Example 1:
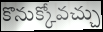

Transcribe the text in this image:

కొనుక్కోవచ్చు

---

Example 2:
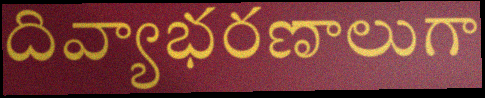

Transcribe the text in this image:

దివ్యాభరణాలుగా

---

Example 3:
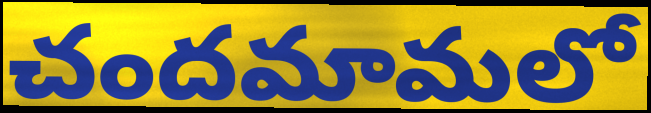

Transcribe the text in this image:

చందమామలో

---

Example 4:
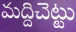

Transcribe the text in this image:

మద్దిచెట్టు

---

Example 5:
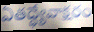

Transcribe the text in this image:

ఏతద్ధ్యేవాక్షరం